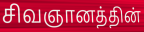
சிவஞானத்தின்